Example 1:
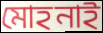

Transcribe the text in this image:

মোহনাই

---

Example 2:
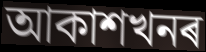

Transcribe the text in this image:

আকাশখনৰ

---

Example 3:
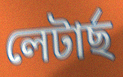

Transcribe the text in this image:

লেটাৰ্ছ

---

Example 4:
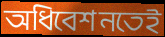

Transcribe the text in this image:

অধিবেশনতেই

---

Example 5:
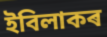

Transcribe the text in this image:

ইবিলাকৰ